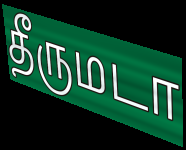
தீருமடா